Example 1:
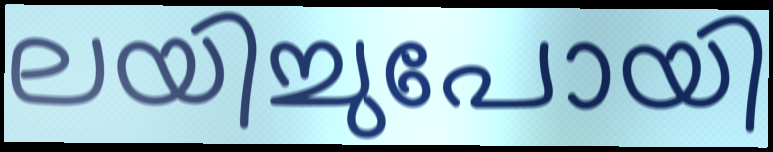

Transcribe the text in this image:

ലയിച്ചുപോയി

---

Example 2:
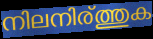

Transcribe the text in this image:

നിലനിര്ത്തുക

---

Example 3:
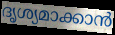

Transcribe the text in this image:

ദൃശ്യമാക്കാൻ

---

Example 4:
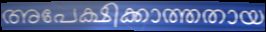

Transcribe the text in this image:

അപേക്ഷിക്കാത്തതായ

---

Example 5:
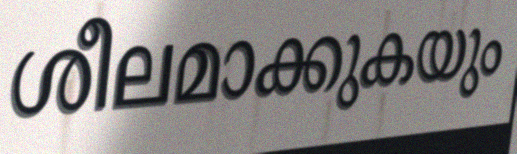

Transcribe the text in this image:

ശീലമാക്കുകയും